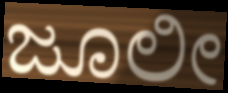
ಜೂಲೀ